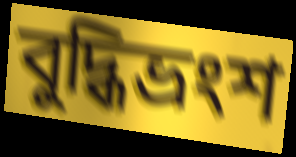
বুদ্ধিভ্রংশ